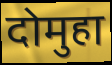
दोमुहा